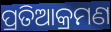
ପ୍ରତିଆକ୍ରମଣ